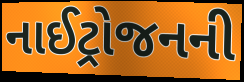
નાઈટ્રોજનની